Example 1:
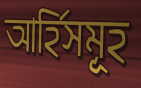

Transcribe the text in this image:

আৰ্হিসমূহ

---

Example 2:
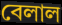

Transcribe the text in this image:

বেলাল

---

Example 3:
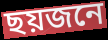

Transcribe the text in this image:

ছয়জনে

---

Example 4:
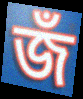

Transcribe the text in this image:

জঁ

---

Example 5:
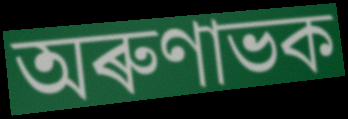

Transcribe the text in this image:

অৰুণাভক